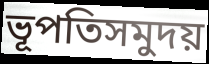
ভূপতিসমুদয়